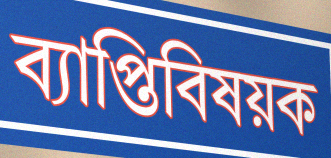
ব্যাপ্তিবিষয়ক